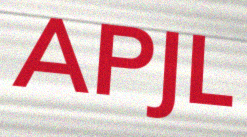
APJL